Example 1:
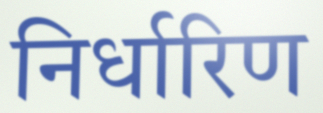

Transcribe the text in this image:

निर्धारिण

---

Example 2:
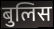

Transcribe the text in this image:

बुलिस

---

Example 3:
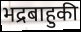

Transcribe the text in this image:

भद्रबाहुकी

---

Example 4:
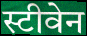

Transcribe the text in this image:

स्टीवेन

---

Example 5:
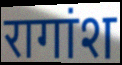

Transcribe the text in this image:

रागांश